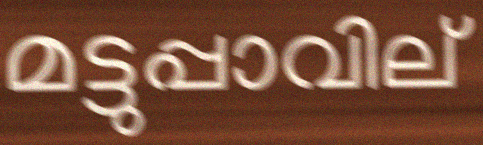
മട്ടുപ്പാവില്